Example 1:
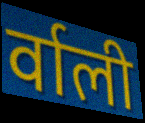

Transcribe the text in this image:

र्वाली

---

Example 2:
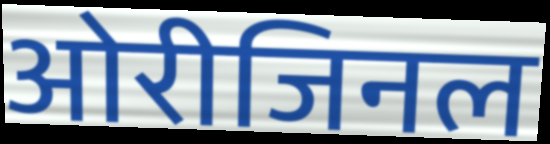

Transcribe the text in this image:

ओरीजिनल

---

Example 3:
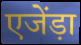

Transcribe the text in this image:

एजेंड़ा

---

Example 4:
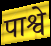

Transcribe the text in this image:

पाश्वे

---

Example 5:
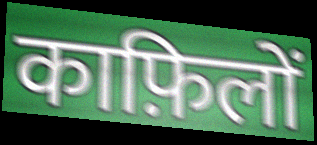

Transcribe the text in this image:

काफ़िलों